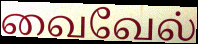
வைவேல்